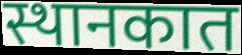
स्थानकात